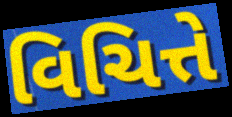
વિચિત્તે